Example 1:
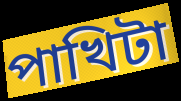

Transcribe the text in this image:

পাখিটা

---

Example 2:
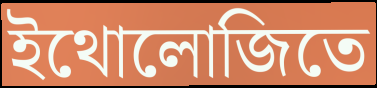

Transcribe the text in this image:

ইথোলোজিতে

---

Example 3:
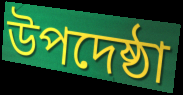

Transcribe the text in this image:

উপদেষ্ঠা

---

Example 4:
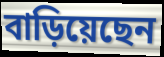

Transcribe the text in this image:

বাড়িয়েছেন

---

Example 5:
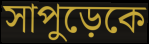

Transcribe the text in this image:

সাপুড়েকে